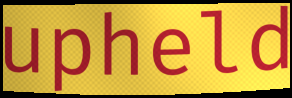
upheld